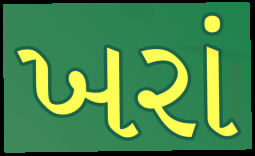
ખરાં